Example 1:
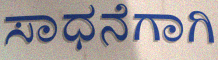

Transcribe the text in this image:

ಸಾಧನೆಗಾಗಿ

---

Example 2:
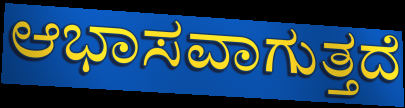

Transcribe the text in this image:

ಆಭಾಸವಾಗುತ್ತದೆ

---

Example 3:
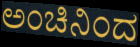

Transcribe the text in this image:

ಅಂಚಿನಿಂದ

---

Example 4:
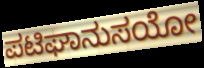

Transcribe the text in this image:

ಪಟಿಘಾನುಸಯೋ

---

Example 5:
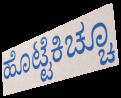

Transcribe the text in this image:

ಹೊಟ್ಟೆಕಿಚ್ಚೂ